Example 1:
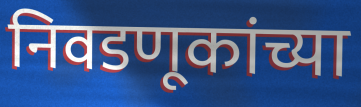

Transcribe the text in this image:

निवडणूकांच्या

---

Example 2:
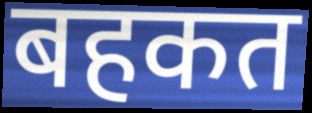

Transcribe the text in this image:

बहकत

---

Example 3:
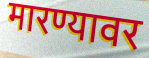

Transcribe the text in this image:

मारण्यावर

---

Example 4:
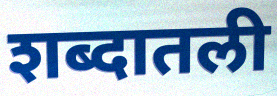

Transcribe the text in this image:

शब्दातली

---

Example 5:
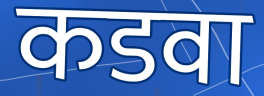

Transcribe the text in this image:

कडवा